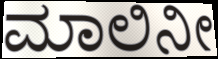
ಮಾಲಿನೀ